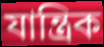
যান্ত্ৰিক